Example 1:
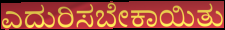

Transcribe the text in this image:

ಎದುರಿಸಬೇಕಾಯಿತು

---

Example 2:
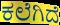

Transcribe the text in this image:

ಕಲೆಗಿದೆ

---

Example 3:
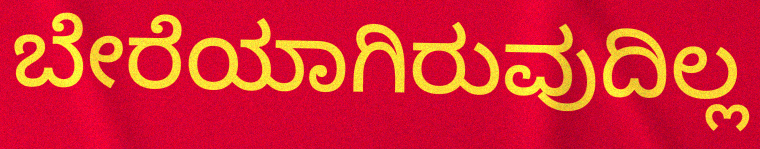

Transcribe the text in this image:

ಬೇರೆಯಾಗಿರುವುದಿಲ್ಲ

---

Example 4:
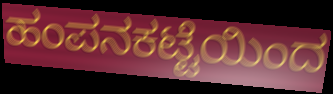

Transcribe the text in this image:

ಹಂಪನಕಟ್ಟೆಯಿಂದ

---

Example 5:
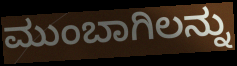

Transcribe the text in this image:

ಮುಂಬಾಗಿಲನ್ನು